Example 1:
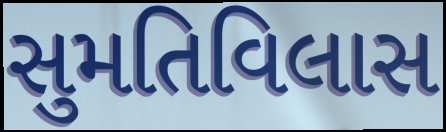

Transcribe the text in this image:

સુમતિવિલાસ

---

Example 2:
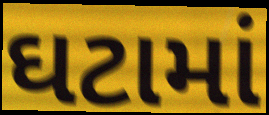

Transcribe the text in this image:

ઘટામાં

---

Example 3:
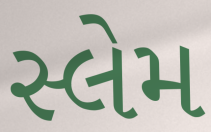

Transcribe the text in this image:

સ્લેમ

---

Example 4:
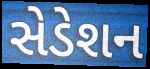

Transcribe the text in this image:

સેડેશન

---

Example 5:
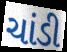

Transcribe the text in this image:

ચાંડી